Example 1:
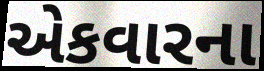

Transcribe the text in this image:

એકવારના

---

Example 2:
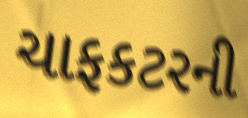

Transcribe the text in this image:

ચાફકટરની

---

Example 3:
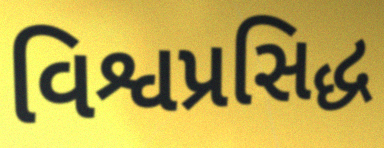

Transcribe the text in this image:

વિશ્વપ્રસિદ્ધ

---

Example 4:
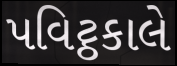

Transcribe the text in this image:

પવિટ્ઠકાલે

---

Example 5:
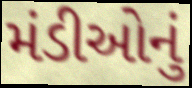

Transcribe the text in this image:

મંડીઓનું